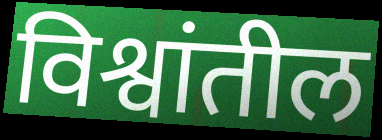
विश्वांतील